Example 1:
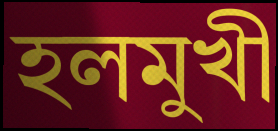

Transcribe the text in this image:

হলমুখী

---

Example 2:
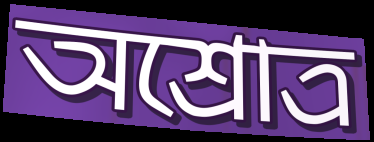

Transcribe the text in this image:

অশ্রোত্র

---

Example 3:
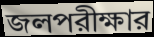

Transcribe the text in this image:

জলপরীক্ষার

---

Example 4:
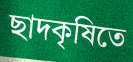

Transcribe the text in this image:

ছাদকৃষিতে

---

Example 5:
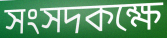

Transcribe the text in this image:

সংসদকক্ষে